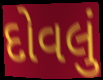
દોવલું